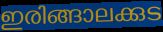
ഇരിങ്ങാലക്കുട